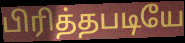
பிரித்தபடியே